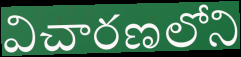
విచారణలోని